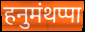
हनुमंथप्पा